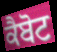
ਕੈਬੋਟ